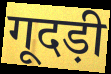
गूदड़ी